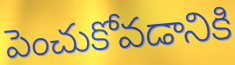
పెంచుకోవడానికి